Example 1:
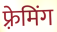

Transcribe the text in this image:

फ़्रेमिंग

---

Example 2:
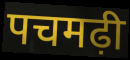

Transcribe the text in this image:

पचमढ़ी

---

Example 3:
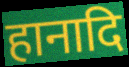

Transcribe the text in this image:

हानादि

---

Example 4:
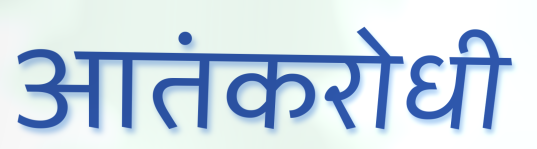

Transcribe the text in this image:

आतंकरोधी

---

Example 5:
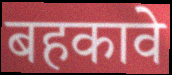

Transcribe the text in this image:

बहकावे